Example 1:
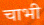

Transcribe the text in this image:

चाभी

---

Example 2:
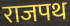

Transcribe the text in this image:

राजपथ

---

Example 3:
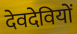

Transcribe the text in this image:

देवदेवियों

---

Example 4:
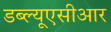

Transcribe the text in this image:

डब्ल्यूएसीआर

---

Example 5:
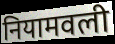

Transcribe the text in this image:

नियामवली